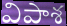
విపాశ